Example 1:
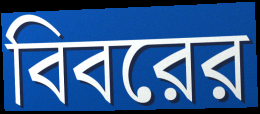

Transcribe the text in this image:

বিবরের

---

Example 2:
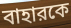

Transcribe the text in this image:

বাহারকে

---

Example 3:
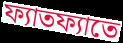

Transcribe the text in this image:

ফ্যাতফ্যাতে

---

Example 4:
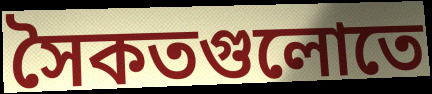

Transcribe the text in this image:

সৈকতগুলোতে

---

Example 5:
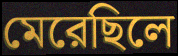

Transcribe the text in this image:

মেরেছিলে